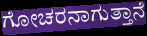
ಗೋಚರನಾಗುತ್ತಾನೆ